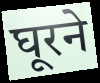
घूरने